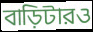
বাড়িটারও